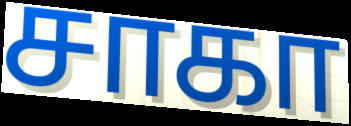
சாகா